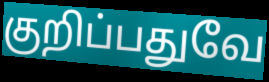
குறிப்பதுவே